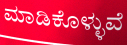
ಮಾಡಿಕೊಳ್ಳುವೆ